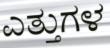
ಎತ್ತುಗಳ